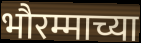
भौरम्माच्या